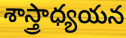
శాస్త్రాధ్యయన